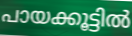
പായക്കൂട്ടിൽ